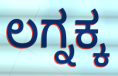
ಲಗ್ನಕ್ಕ